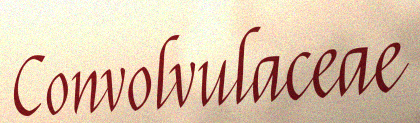
Convolvulaceae